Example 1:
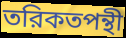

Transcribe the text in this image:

তরিকতপন্থী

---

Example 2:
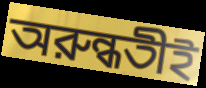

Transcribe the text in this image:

অরুন্ধতীই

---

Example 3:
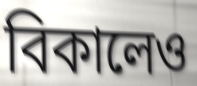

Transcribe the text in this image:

বিকালেও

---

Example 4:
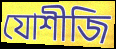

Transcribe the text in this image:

যোশীজি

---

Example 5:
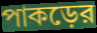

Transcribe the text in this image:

পাকড়ের